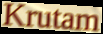
Krutam